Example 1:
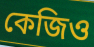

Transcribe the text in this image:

কেজিও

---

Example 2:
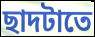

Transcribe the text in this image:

ছাদটাতে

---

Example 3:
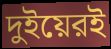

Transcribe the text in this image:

দুইয়েরই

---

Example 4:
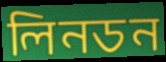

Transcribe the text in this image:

লিনডন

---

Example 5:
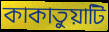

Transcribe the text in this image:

কাকাতুয়াটি